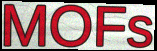
MOFs